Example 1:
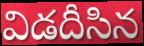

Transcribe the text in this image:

విడదీసిన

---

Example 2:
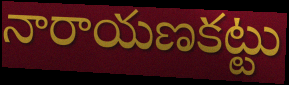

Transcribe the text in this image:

నారాయణకట్టు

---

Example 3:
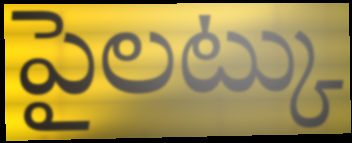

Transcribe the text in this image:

పైలట్కు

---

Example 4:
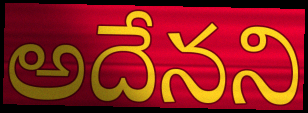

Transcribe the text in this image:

అదేనని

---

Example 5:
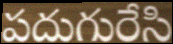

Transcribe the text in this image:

పదుగురేసి